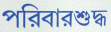
পরিবারশুদ্ধ